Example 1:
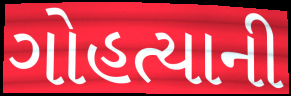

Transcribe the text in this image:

ગોહત્યાની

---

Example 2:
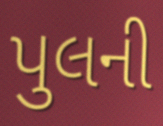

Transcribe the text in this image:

પુલની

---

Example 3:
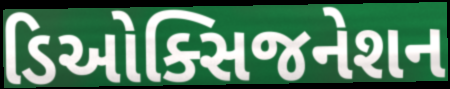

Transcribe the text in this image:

ડિઓક્સિજનેશન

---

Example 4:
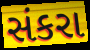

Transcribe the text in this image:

સંકરા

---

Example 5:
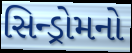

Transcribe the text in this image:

સિન્ડ્રોમનો